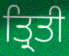
ਤ੍ਰਿਤੀ